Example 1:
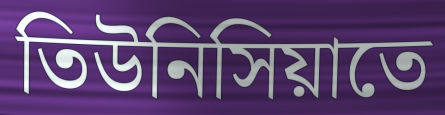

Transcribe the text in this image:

তিউনিসিয়াতে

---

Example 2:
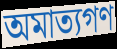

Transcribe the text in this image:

অমাত্যগণ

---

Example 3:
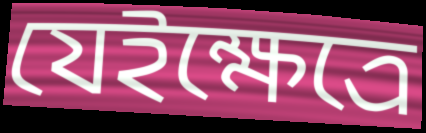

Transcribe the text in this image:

যেইক্ষেত্রে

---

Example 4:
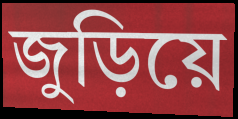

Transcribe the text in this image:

জুড়িয়ে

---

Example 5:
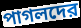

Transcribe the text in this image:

পাগলদের